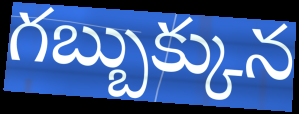
గబ్బుక్కున